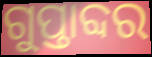
ଗୁପ୍ତାବ୍ଦର